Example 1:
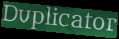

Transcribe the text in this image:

Duplicator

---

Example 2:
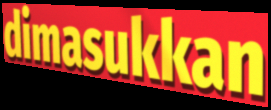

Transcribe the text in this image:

dimasukkan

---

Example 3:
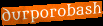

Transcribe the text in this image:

durporobash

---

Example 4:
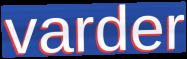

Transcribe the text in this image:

varder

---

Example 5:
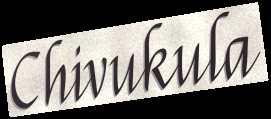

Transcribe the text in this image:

Chivukula